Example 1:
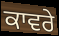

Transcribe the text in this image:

ਕਾਵਰੇ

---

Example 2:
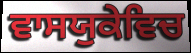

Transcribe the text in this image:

ਵਾਸਯੁਕੇਵਿਚ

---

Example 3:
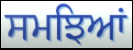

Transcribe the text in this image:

ਸਮਝਿਆਂ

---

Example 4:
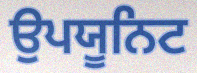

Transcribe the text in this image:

ਉਪਯੂਨਿਟ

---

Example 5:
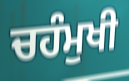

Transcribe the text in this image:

ਚਹੰਮੁਖੀ